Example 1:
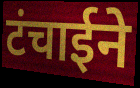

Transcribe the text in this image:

टंचाईने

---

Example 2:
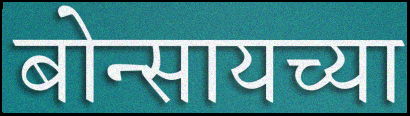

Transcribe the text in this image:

बोन्सायच्या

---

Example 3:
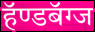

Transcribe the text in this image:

हॅण्डबॅग्ज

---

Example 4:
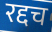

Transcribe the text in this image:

रद्दच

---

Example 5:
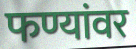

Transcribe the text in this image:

फण्यांवर